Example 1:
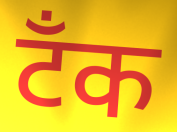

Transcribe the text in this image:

टॅंक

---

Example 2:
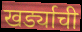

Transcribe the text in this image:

खर्ड्याची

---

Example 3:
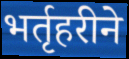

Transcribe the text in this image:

भर्तृहरीने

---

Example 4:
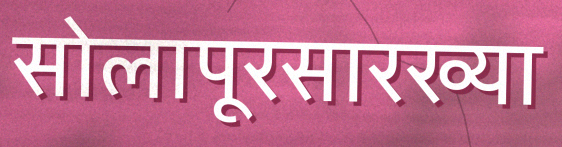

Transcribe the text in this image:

सोलापूरसारख्या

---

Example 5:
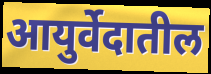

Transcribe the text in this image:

आयुर्वेदातील